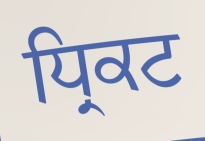
ਧ੍ਰਿਕਟ